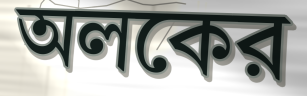
অলকের